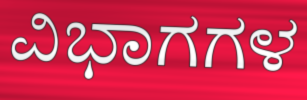
ವಿಭಾಗಗಳ